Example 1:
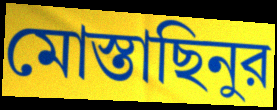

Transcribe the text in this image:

মোস্তাছিনুর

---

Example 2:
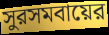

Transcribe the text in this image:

সুরসমবায়ের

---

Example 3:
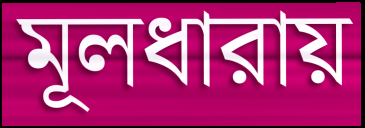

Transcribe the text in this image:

মূলধারায়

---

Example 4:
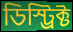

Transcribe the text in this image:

ডিস্ট্রিক্ট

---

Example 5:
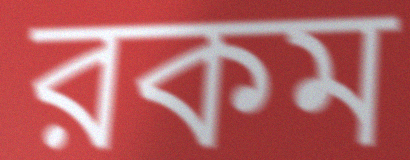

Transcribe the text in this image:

রকম